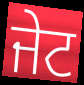
ਜੇਟ